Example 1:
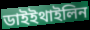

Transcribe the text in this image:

ডাইইথাইলিন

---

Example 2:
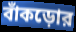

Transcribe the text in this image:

বাঁকড়োর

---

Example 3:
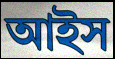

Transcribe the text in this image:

আইস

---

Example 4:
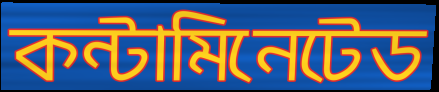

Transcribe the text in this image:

কন্টামিনেটেড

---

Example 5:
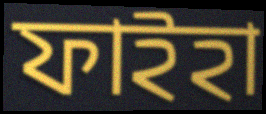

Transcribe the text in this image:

ফাইহা